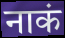
नाकं